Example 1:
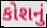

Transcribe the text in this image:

કોશનું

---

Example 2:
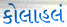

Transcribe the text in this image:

કોલાહલં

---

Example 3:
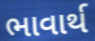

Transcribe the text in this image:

ભાવાર્થ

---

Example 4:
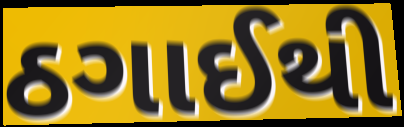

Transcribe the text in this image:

ઠગાઈથી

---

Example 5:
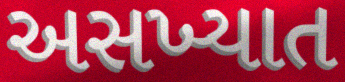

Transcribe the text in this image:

અસખ્યાત